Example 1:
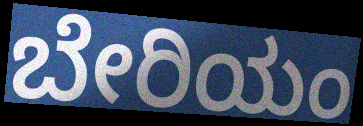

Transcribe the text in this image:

ಬೇರಿಯಂ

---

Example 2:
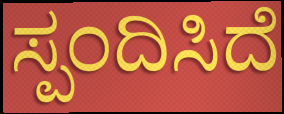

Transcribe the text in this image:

ಸ್ಪಂದಿಸಿದೆ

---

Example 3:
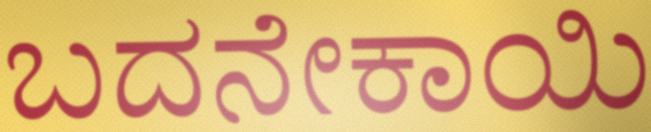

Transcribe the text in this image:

ಬದನೇಕಾಯಿ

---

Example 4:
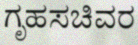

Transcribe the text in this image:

ಗೃಹಸಚಿವರ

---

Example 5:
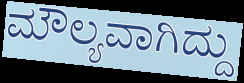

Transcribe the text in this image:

ಮೌಲ್ಯವಾಗಿದ್ದು